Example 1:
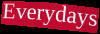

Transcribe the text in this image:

Everydays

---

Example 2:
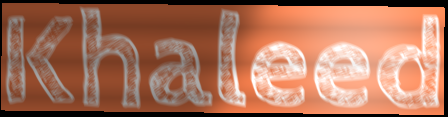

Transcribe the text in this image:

Khaleed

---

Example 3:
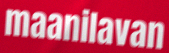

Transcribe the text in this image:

maanilavan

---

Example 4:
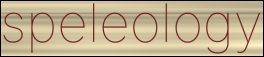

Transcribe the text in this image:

speleology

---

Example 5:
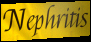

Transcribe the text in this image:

Nephritis